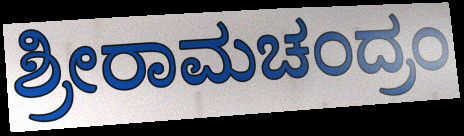
ಶ್ರೀರಾಮಚಂದ್ರಂ